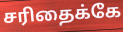
சரிதைக்கே